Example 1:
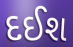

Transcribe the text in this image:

દઈશ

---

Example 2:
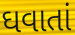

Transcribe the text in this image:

ઘવાતાં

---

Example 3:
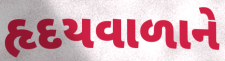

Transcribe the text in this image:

હૃદયવાળાને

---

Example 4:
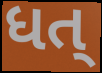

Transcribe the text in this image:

ધત્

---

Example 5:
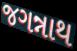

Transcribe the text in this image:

જગન્નાથ